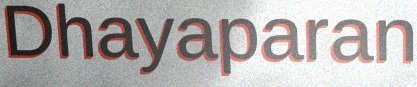
Dhayaparan